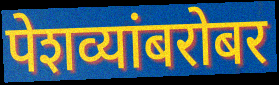
पेशव्यांबरोबर